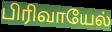
பிரிவாயேல்